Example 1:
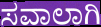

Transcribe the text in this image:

ಸವಾಲಾಗಿ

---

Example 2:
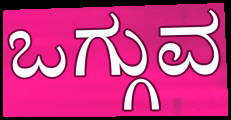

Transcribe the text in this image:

ಒಗ್ಗುವ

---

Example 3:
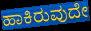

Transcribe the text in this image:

ಹಾಕಿರುವುದೇ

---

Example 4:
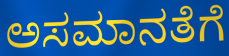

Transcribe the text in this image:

ಅಸಮಾನತೆಗೆ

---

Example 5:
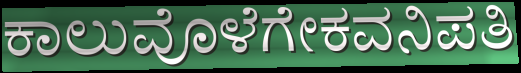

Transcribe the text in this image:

ಕಾಲುವೊಳೆಗೇಕವನಿಪತಿ